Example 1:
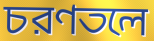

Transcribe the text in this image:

চরণতলে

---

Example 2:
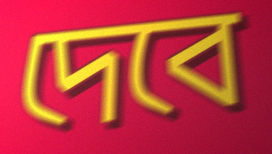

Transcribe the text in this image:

দেবে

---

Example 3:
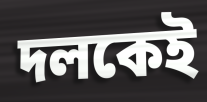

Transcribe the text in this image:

দলকেই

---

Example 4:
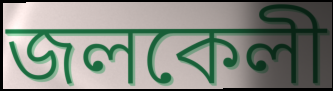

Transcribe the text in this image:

জলকেলী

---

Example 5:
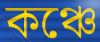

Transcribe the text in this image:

কঞ্চে